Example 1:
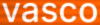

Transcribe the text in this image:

vasco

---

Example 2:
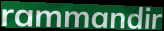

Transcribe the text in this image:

rammandir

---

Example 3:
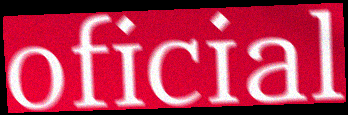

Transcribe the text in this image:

oficial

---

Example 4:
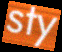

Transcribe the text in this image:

sty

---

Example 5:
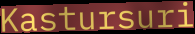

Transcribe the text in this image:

Kastursuri